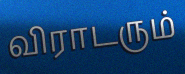
விராடரும்